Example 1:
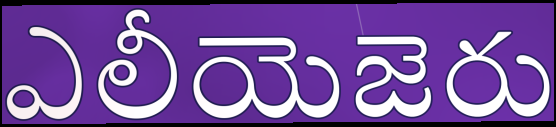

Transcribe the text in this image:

ఎలీయెజెరు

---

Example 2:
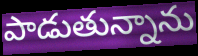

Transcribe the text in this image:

పాడుతున్నాను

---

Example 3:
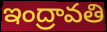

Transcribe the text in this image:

ఇంద్రావతి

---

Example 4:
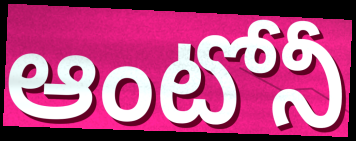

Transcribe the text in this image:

ఆంటోనీ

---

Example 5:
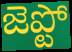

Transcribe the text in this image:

జెప్టో